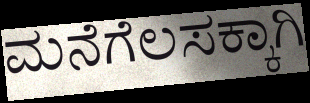
ಮನೆಗೆಲಸಕ್ಕಾಗಿ